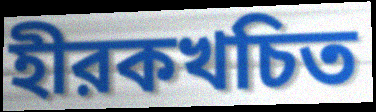
হীরকখচিত